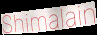
Shimalain